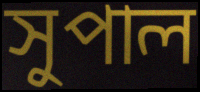
সুপাল